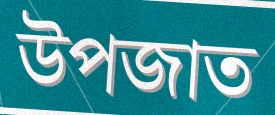
উপজাত